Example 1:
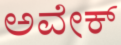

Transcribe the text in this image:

ಅವೇಕ್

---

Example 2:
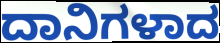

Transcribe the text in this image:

ದಾನಿಗಳಾದ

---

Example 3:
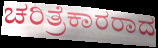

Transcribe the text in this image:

ಚರಿತ್ರೆಕಾರರಾದ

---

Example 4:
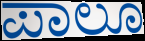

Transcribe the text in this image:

ಪಾಲೂ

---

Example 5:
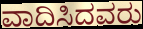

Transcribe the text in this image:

ವಾದಿಸಿದವರು